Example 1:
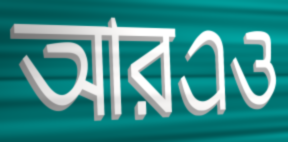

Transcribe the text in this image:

আরএও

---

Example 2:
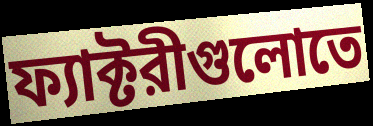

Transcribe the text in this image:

ফ্যাক্টরীগুলোতে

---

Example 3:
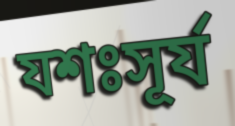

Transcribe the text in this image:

যশঃসূর্য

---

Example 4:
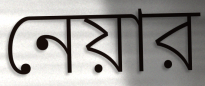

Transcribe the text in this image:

নেয়ার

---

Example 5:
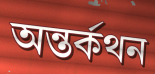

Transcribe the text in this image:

অন্তর্কথন